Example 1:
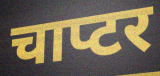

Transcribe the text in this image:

चाप्टर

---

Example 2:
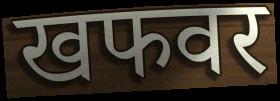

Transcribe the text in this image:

खफवर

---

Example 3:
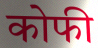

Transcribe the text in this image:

कोफी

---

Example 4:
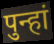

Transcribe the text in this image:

पुन्हां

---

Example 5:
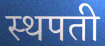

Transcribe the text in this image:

स्थपती